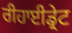
ਰੀਹਾਈਡ੍ਰੇਟ